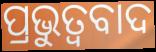
ପ୍ରଭୁତ୍ବବାଦ